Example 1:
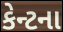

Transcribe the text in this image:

કેન્ટના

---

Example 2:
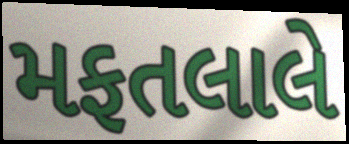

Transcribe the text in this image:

મફતલાલે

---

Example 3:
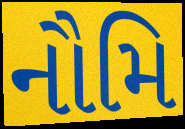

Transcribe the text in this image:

નૌમિ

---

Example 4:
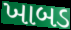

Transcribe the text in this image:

ખાબડ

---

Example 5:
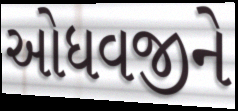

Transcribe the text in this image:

ઓધવજીને